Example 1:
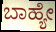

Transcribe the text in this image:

ಬಾಹ್ಯೇ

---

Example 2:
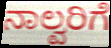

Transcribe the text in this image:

ನಾಲ್ವರಿಗೆ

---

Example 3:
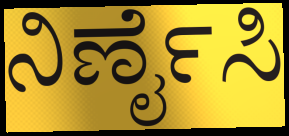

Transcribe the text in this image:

ನಿರ್ಣೈಸಿ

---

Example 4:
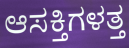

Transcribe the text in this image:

ಆಸಕ್ತಿಗಳತ್ತ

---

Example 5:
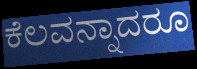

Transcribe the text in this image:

ಕೆಲವನ್ನಾದರೂ